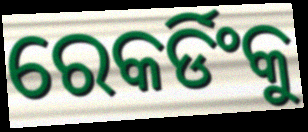
ରେକର୍ଡିଂକୁ